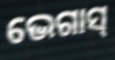
ଭେଗାସ୍